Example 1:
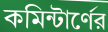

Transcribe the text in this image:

কমিন্টার্ণের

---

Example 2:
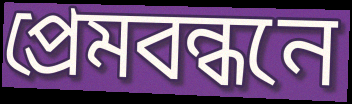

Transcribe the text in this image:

প্রেমবন্ধনে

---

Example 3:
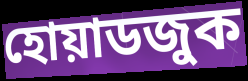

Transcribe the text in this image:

হোয়াডজুক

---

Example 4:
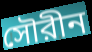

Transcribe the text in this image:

সৌরীন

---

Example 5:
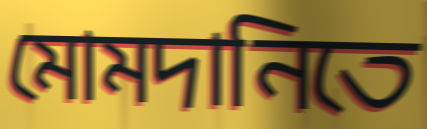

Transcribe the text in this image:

মোমদানিতে